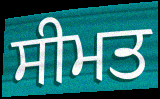
ਸੀਮਤ